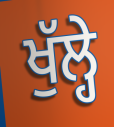
ਖੁੱਲ੍ਹੇ